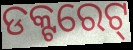
ଡକ୍ଟରେଟ୍